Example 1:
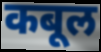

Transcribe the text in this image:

कबूल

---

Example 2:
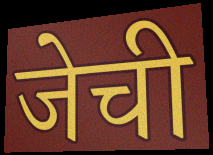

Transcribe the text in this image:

जेची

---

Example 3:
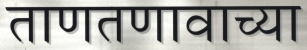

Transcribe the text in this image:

ताणतणावाच्या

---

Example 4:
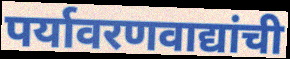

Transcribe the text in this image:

पर्यावरणवाद्यांची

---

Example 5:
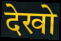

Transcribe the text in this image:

देखो